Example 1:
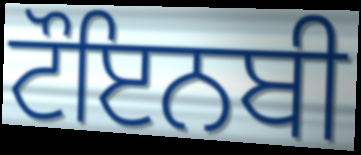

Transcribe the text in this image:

ਟੌਇਨਬੀ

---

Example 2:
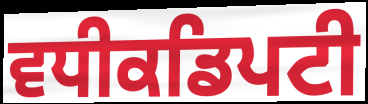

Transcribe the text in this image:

ਵਧੀਕਡਿਪਟੀ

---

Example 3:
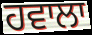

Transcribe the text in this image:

ਹਵਾਲਾ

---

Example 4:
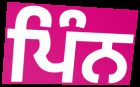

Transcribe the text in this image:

ਪਿੰਨ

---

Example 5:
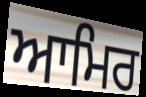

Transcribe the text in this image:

ਆਮਿਰ